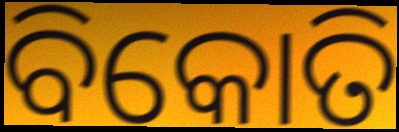
ବିକୋତି